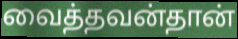
வைத்தவன்தான்